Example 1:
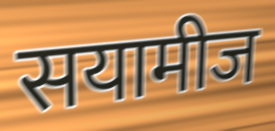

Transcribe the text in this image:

सयामीज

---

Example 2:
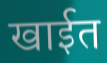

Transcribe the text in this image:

खाईत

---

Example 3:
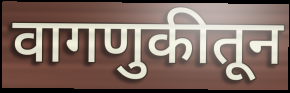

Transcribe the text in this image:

वागणुकीतून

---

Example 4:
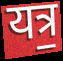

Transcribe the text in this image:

यत्र॒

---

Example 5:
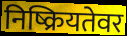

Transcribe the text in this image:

निष्क्रियतेवर